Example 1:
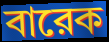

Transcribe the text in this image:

বারেক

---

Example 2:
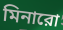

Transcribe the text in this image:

মিনারো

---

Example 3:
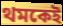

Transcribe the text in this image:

থমকেই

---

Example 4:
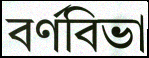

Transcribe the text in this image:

বর্ণবিভা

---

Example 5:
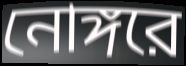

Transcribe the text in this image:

নোঙ্গরে